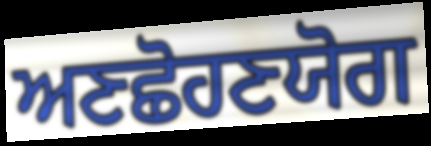
ਅਣਛੋਹਣਯੋਗ